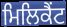
ਮਿਲਿਕੈਂਟ